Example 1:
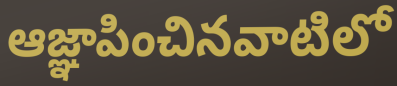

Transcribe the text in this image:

ఆజ్ఞాపించినవాటిలో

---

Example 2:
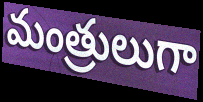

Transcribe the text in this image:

మంత్రులుగా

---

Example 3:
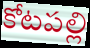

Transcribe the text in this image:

కోటపల్లి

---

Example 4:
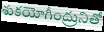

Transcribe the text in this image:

శుకయోగీంద్రునితో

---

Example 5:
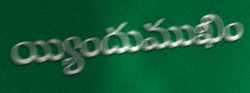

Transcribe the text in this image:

య్యిందుముఖిం